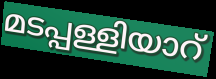
മടപ്പള്ളിയാറ്